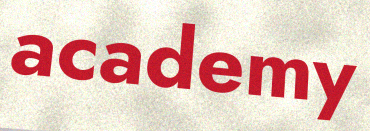
academy